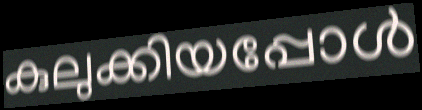
കുലുക്കിയപ്പോൾ